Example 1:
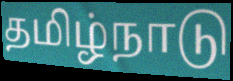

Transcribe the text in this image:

தமிழ்நாடு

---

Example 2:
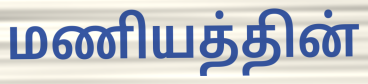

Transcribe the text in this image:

மணியத்தின்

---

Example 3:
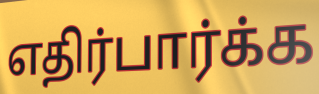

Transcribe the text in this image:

எதிர்பார்க்க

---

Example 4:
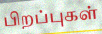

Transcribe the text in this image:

பிறப்புகள்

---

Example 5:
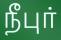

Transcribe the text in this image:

நீபுர்